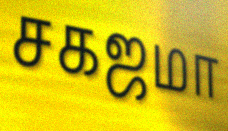
சகஜமா